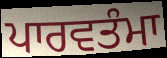
ਪਾਰਵਤੰਮਾ